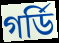
গর্ডি